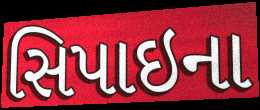
સિપાઇના